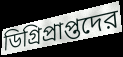
ডিগ্রিপ্রাপ্তদের